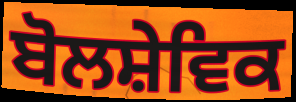
ਬੋਲਸ਼ੇਵਿਕ